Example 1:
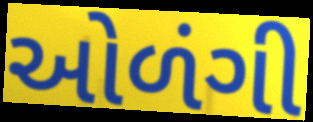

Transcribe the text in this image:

ઓળંગી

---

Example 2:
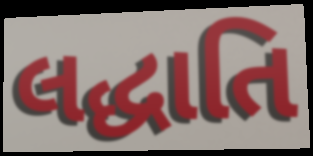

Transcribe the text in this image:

લદ્ધાતિ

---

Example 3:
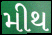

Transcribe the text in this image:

મીથ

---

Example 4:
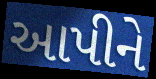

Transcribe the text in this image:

આપીને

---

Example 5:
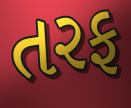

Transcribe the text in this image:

તરફ